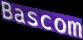
Bascom